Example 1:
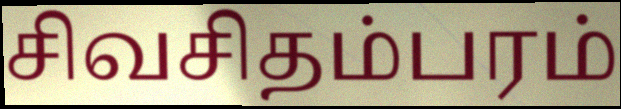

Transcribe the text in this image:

சிவசிதம்பரம்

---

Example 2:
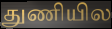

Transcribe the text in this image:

துணியில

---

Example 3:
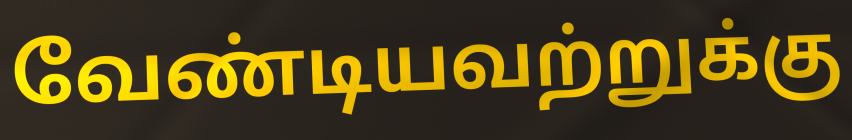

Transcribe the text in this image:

வேண்டியவற்றுக்கு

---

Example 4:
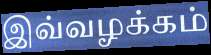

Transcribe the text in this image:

இவ்வழக்கம்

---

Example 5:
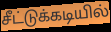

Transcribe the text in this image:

சீட்டுக்கடியில்